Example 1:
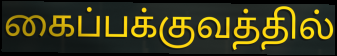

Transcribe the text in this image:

கைப்பக்குவத்தில்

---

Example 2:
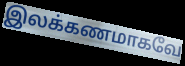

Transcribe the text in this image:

இலக்கணமாகவே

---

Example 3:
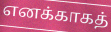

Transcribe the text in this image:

எனக்காகத்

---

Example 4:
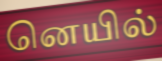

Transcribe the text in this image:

னெயில்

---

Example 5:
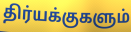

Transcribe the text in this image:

திர்யக்குகளும்